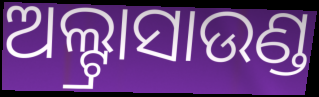
ଅଲ୍ଟ୍ରାସାଉଣ୍ଡ